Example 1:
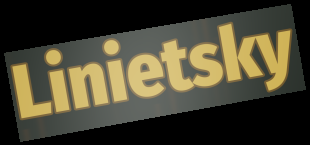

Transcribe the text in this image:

Linietsky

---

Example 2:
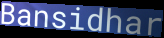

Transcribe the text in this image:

Bansidhar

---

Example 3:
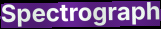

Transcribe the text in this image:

Spectrograph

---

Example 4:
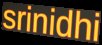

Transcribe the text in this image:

srinidhi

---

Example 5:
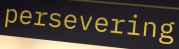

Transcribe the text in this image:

persevering